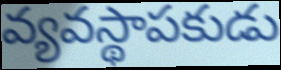
వ్యవస్థాపకుడు